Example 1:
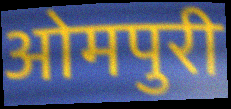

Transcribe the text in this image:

ओमपुरी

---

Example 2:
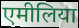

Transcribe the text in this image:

एमीलिया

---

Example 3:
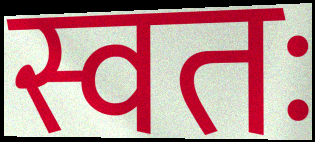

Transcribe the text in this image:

स्वतः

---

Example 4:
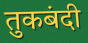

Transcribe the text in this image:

तुकबंदी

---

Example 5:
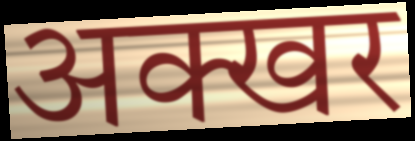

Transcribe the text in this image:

अक्खर